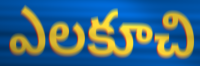
ఎలకూచి